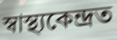
স্বাস্থ্যকেন্দ্ৰত